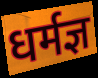
धर्मज्ञ